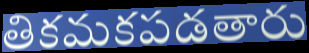
తికమకపడతారు